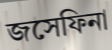
জসেফিনা